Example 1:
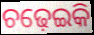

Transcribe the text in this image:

ଚଢ଼େଇକି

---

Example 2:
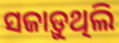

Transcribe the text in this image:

ସଜାଡ଼ୁଥିଲି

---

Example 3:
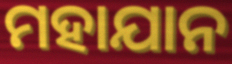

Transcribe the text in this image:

ମହାଯାନ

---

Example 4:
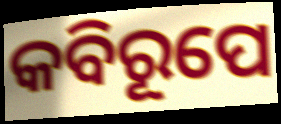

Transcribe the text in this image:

କବିରୂପେ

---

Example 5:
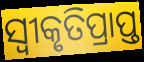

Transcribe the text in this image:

ସ୍ବୀକୃତିପ୍ରାପ୍ତ